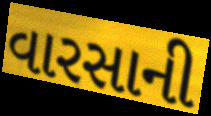
વારસાની